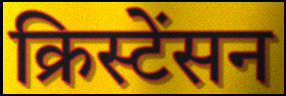
क्रिस्टेंसन